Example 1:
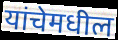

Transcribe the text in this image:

यांचेमधील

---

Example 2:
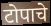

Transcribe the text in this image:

टोपाचे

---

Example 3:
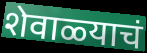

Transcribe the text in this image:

शेवाळ्याचं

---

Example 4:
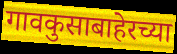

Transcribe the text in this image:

गावकुसाबाहेरच्या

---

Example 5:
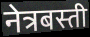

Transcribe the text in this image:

नेत्रबस्ती